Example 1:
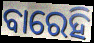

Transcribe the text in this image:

ବାରେହି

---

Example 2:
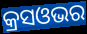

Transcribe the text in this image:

କ୍ରସଓଭର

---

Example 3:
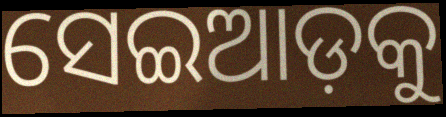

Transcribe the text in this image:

ସେଇଆଡ଼କୁ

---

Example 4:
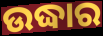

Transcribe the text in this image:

ଉଦ୍ଧାର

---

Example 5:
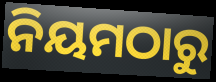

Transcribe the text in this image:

ନିୟମଠାରୁ